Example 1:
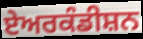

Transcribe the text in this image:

ਏਅਰਕੰਡੀਸ਼ਨ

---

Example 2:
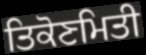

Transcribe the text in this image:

ਤਿਕੋਣਮਿਤੀ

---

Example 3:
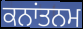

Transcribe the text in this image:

ਕਨਾਂਤਨਮ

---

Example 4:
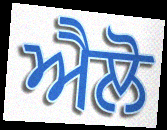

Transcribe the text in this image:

ਐਲੋ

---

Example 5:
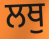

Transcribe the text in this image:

ਲਥੁ